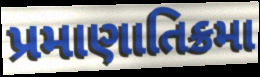
પ્રમાણાતિક્રમા